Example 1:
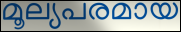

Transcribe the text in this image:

മൂല്യപരമായ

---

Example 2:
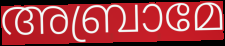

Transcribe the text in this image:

അബ്രാമേ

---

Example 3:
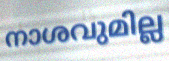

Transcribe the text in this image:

നാശവുമില്ല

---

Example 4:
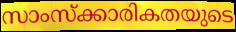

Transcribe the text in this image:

സാംസ്ക്കാരികതയുടെ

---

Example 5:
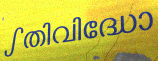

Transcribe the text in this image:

ഽതിവിദ്ധോ